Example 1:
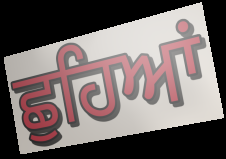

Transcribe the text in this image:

ਛੁਹਿਆਂ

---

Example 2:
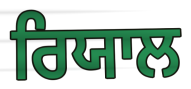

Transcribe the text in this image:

ਰਿਯਾਲ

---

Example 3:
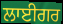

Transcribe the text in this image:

ਲਾਈਗਰ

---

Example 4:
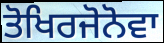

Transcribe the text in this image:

ਤੋਖਿਰਜੋਨੋਵਾ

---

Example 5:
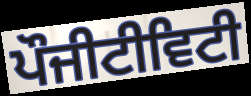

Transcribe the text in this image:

ਪੌਜੀਟੀਵਿਟੀ